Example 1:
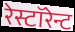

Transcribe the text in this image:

रेस्टॉरेन्ट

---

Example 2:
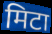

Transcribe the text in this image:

मिटा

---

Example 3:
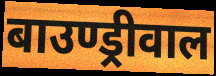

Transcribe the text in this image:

बाउण्ड्रीवाल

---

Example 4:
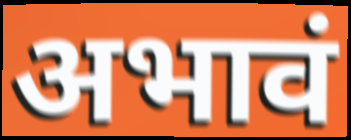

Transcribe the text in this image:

अभावं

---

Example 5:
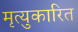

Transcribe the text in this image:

मृत्युकारित